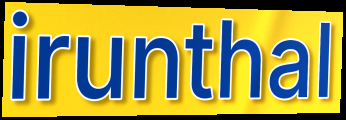
irunthal